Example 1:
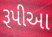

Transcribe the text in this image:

રૂપીઆ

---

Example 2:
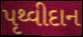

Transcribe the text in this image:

પૃથ્વીદાન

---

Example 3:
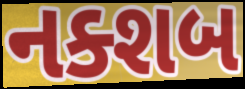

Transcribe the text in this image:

નક્શબ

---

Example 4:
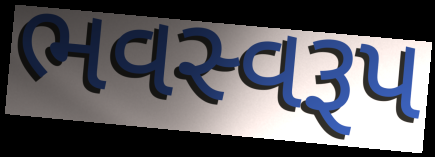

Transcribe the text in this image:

ભવસ્વરૂપ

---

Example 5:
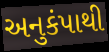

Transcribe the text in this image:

અનુકંપાથી